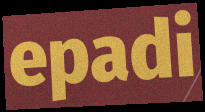
epadi